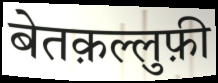
बेतक़ल्लुफ़ी